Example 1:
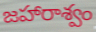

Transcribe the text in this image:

జహారాశ్వం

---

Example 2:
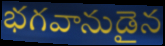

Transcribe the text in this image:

భగవానుడైన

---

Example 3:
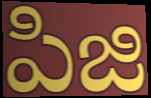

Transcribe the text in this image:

పిజి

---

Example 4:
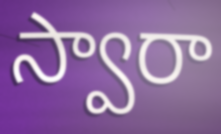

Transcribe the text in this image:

స్వారా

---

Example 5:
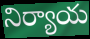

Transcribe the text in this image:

నిర్యాయ